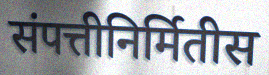
संपत्तीनिर्मितीस